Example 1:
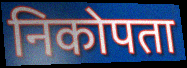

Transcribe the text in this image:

निकोपता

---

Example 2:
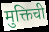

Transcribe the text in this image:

मुक्तिची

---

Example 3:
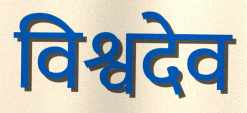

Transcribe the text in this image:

विश्वदेव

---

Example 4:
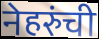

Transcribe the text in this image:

नेहरुंची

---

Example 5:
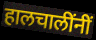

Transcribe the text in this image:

हालचालींनीं